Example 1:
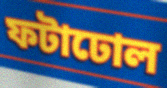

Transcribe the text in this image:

ফটাঢোল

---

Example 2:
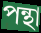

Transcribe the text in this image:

পন্থা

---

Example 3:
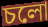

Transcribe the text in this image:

চলো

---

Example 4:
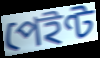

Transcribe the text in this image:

পেইণ্ট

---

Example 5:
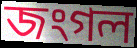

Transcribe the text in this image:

জংগল